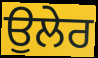
ਉਲੇਰ